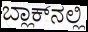
ಬ್ಲಾಕ್‌ನಲ್ಲಿ